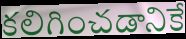
కలిగించడానికే